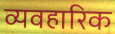
व्यवहारिक